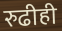
रुढीही